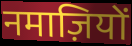
नमाज़ियों